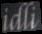
idli